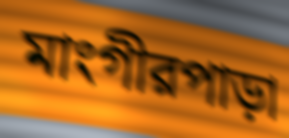
মাংগীরপাড়া